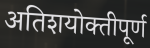
अतिशयोक्तीपूर्ण